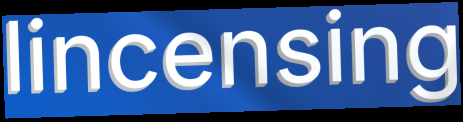
lincensing